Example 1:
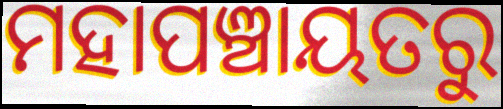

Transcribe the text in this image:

ମହାପଞ୍ଚାୟତରୁ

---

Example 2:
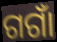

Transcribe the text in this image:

ଗଗାଁ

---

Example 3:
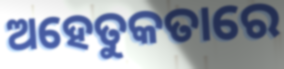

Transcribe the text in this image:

ଅହେତୁକତାରେ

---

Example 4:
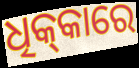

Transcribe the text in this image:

ଧିକ୍‌କାରେ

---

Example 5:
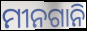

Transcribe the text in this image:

ମୀନଗାନି